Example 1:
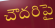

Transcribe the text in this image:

చౌదరిపై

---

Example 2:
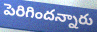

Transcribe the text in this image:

పెరిగిందన్నారు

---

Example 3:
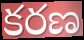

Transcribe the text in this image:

కరణ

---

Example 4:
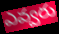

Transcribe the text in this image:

ఎవ్వరు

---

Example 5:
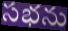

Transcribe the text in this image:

సభను